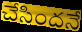
చేసిందనే